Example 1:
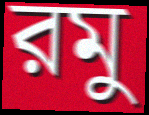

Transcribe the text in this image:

রমু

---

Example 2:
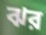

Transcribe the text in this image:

ঝর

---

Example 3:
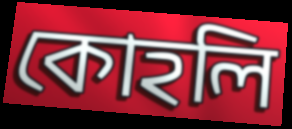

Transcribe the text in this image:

কোহলি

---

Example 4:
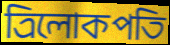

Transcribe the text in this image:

ত্রিলোকপতি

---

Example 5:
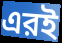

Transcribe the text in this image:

এরই